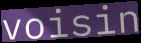
voisin